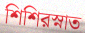
শিশিরস্নাত